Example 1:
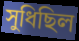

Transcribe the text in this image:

সুধিছিল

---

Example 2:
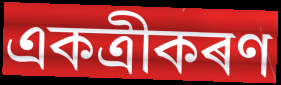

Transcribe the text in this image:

একত্ৰীকৰণ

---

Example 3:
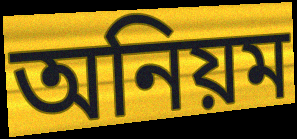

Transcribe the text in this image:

অনিয়ম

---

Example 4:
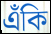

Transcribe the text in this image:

এঁকি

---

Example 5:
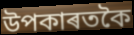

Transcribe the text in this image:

উপকাৰতকৈ